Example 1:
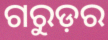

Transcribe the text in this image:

ଗରୁଡ଼ର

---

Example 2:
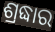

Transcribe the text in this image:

ଶ୍ରଦ୍ଧାର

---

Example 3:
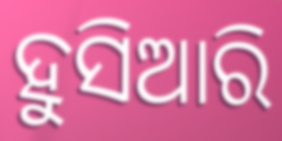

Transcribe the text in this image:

ହୁସିଆରି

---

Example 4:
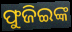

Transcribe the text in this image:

ଫୁଜିଇଙ୍କ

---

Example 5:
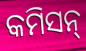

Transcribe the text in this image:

କମିସନ୍